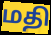
மதி